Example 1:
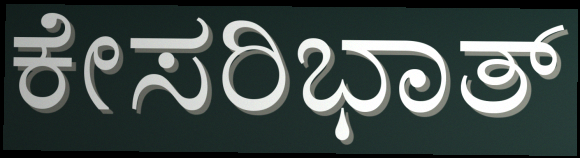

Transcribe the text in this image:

ಕೇಸರಿಭಾತ್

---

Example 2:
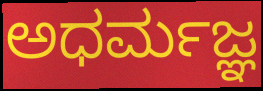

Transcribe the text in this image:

ಅಧರ್ಮಜ್ಞ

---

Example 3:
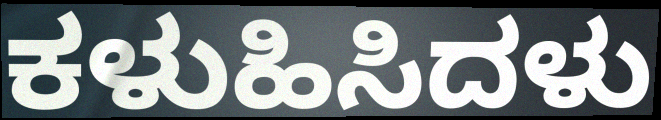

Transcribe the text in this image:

ಕಳುಹಿಸಿದಳು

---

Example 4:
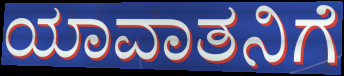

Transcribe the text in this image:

ಯಾವಾತನಿಗೆ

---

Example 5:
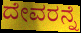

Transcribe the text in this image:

ದೇವರನ್ನೆ